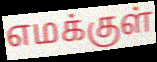
எமக்குள்